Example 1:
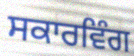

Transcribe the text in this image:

ਸਕਾਰਵਿੰਗ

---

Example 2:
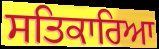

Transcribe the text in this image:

ਸਤਿਕਾਰਿਆ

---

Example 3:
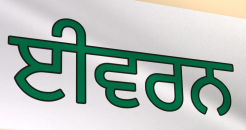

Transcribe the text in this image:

ਈਵਰਨ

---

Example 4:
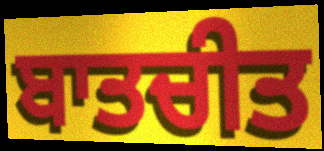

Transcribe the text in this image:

ਬਾਤਚੀਤ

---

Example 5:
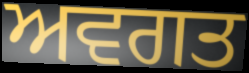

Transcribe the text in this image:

ਅਵਗਤ